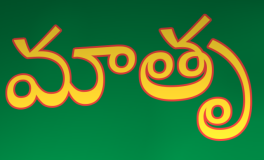
మాతృ